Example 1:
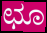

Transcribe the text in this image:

ಛೂ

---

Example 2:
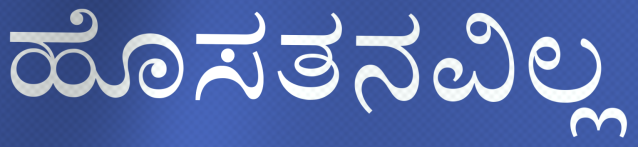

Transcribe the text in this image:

ಹೊಸತನವಿಲ್ಲ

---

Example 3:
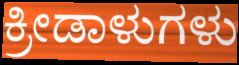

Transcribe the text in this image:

ಕ್ರೀಡಾಳುಗಳು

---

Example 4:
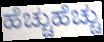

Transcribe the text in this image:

ಹೆಚ್ಚುಹೆಚ್ಚು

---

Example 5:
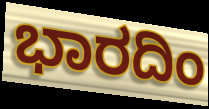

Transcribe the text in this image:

ಭಾರದಿಂ